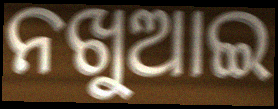
ନଖୁଆଇ